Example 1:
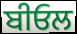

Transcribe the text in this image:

ਬੀਓਲ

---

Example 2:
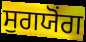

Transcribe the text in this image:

ਸੁਗਯੋਂਗ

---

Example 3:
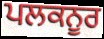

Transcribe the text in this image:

ਪਲਕਨੂਰ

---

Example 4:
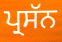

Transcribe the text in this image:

ਪ੍ਰਸੱਨ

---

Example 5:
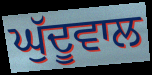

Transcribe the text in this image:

ਘੁੱਦੂਵਾਲ